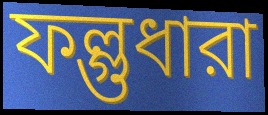
ফল্গুধারা